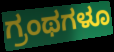
ಗ್ರಂಥಗಳೂ